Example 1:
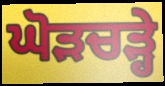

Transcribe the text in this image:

ਘੋੜਚੜ੍ਹੇ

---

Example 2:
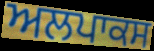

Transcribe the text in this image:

ਅਲਪਾਕਸ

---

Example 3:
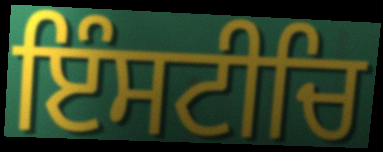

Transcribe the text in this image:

ਇੰਸਟੀਚਿ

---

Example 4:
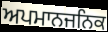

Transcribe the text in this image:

ਅਪਮਾਨਜਨਿਕ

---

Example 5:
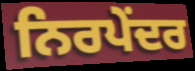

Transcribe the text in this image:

ਨਿਰਪੇਂਦਰ